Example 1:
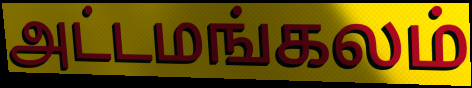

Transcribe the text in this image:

அட்டமங்கலம்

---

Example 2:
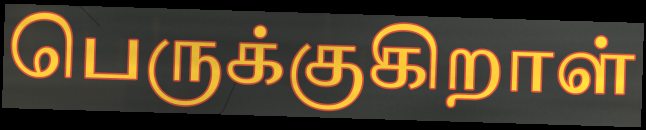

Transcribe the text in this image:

பெருக்குகிறாள்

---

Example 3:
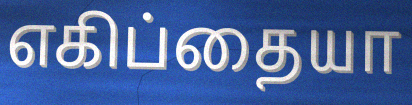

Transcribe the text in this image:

எகிப்தையா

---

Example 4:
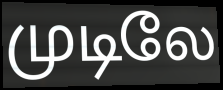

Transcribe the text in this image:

முடிலே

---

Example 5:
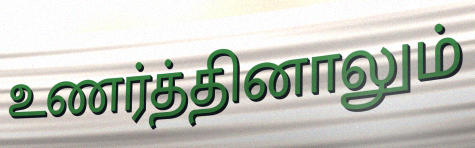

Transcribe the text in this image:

உணர்த்தினாலும்